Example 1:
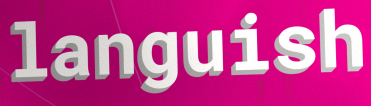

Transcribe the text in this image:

languish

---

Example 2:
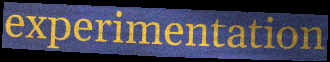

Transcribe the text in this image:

experimentation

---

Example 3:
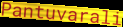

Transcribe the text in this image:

Pantuvarali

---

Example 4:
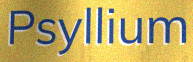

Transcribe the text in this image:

Psyllium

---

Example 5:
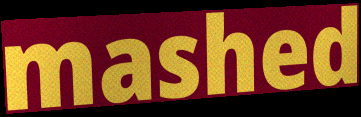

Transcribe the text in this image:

mashed